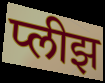
प्लीझ